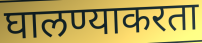
घालण्याकरता